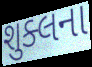
શુક્લના